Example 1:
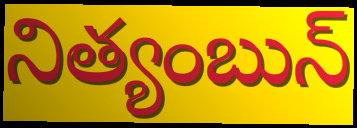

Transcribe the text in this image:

నిత్యంబున్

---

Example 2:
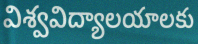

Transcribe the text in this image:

విశ్వవిద్యాలయాలకు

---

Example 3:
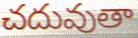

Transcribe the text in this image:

చదువుతా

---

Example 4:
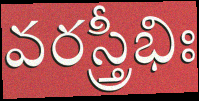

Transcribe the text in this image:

వరస్త్రీభిః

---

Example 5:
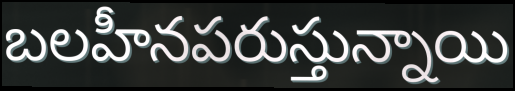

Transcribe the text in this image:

బలహీనపరుస్తున్నాయి